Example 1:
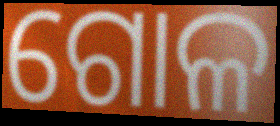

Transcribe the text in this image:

ଗୋଳ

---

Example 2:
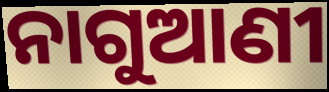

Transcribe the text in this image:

ନାଗୁଆଣୀ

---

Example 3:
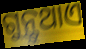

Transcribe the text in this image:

ଗୁନ୍ଥୁଥାଏ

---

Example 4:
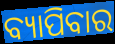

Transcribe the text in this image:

ବ୍ୟାପିବାର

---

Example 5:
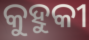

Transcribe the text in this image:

କୁହୁକୀ